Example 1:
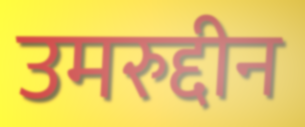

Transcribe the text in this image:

उमरुद्दीन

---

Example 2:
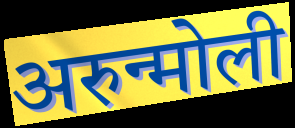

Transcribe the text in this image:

अरुन्मोली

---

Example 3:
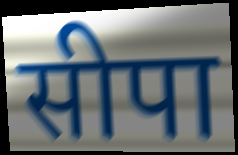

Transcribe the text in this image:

सीपा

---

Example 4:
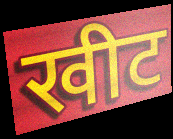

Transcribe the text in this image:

खीट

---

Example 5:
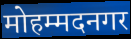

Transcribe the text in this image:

मोहम्मदनगर